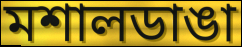
মশালডাঙা